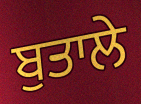
ਬੁਤਾਲੇ